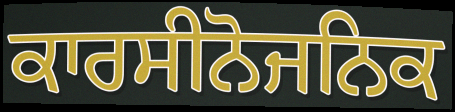
ਕਾਰਸੀਨੋਜਨਿਕ